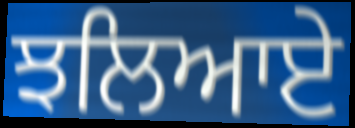
ਝਲਿਆਏ